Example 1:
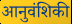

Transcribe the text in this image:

आनुवंशिकी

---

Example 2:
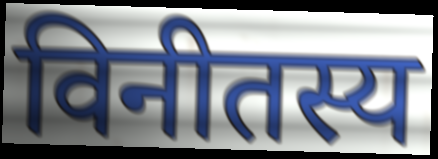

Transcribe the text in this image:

विनीतस्य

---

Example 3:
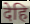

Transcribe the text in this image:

देहि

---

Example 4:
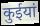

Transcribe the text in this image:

कुईयां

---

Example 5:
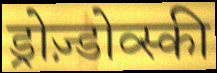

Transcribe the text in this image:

ड्रोज़्डोव्स्की